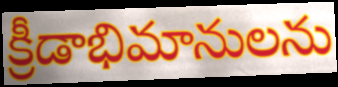
క్రీడాభిమానులను